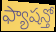
ఫ్యాషన్తో